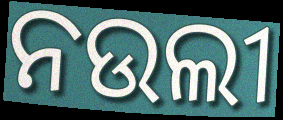
ନଉଲୀ